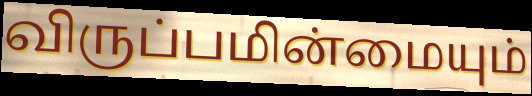
விருப்பமின்மையும்